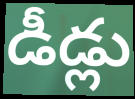
డీడ్లు